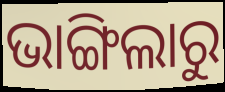
ଭାଙ୍ଗିଲାରୁ